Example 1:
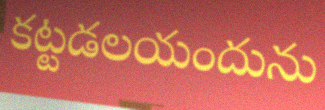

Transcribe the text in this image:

కట్టడలయందును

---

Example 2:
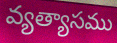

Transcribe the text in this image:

వ్యత్యాసము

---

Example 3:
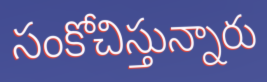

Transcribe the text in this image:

సంకోచిస్తున్నారు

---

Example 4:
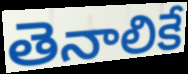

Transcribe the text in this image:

తెనాలికే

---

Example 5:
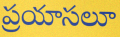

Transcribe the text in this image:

ప్రయాసలూ